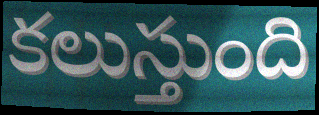
కలుస్తుంది